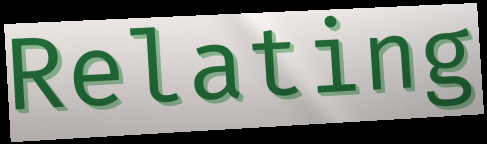
Relating